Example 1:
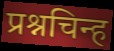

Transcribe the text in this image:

प्रश्नचिन्ह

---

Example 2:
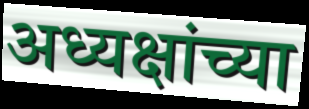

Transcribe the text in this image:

अध्यक्षांच्या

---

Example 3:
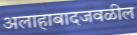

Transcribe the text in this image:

अलाहाबादजवळील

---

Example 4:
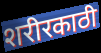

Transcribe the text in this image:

शरीरकाठी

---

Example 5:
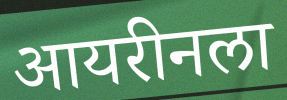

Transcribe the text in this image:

आयरीनला